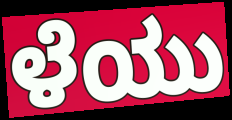
ಳೆಯು